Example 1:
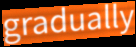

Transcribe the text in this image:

gradually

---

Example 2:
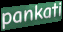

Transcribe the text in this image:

pankati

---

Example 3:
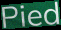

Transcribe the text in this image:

Pied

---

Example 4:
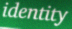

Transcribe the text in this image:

identity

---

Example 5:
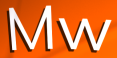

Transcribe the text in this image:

Mw